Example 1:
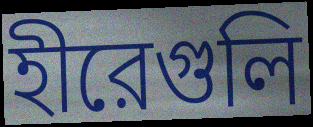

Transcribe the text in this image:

হীরেগুলি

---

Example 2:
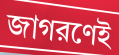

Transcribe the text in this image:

জাগরণেই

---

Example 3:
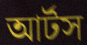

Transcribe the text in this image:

আর্টস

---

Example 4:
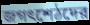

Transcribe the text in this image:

জগৎশেঠদের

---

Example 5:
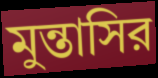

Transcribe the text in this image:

মুন্তাসির